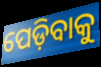
ପେଡ଼ିବାକୁ